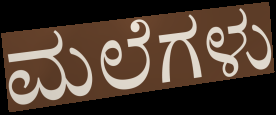
ಮಲೆಗಳು